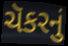
ચૅકરનું